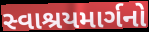
સ્વાશ્રયમાર્ગનો